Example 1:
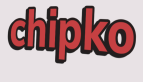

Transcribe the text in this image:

chipko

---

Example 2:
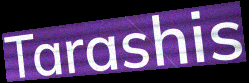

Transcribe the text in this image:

Tarashis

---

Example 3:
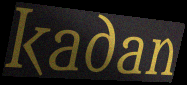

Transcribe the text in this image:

kadan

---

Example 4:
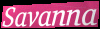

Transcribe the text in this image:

Savanna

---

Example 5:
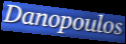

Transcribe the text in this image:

Danopoulos